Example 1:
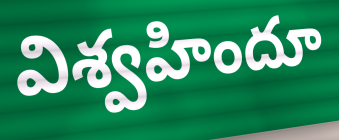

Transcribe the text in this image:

విశ్వహిందూ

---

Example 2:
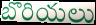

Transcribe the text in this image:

బొరియలు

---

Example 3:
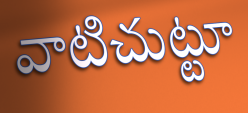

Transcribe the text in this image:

వాటిచుట్టూ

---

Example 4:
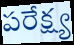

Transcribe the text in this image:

పరేక్ష్య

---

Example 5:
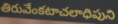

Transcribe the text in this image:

తిరువేంకటాచలాధిపుని